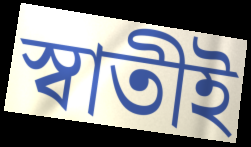
স্বাতীই